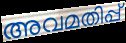
അവമതിപ്പ്